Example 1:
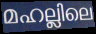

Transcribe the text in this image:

മഹല്ലിലെ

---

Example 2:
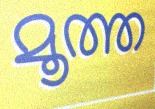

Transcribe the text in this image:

മൂത്ത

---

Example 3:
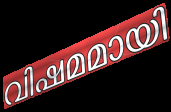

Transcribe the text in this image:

വിഷമമായി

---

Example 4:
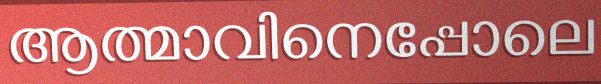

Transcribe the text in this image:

ആത്മാവിനെപ്പോലെ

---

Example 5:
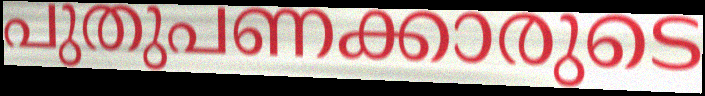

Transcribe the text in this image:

പുതുപണക്കാരുടെ